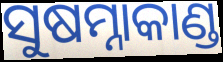
ସୁଷମ୍ନାକାଣ୍ଡ